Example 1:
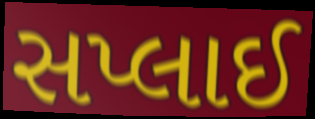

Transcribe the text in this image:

સપ્લાઈ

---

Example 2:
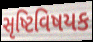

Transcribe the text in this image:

સૃષ્ટિવિષયક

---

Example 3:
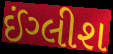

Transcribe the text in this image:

ઈંગ્લીશ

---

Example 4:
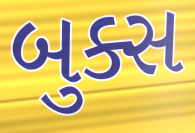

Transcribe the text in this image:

બુક્સ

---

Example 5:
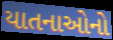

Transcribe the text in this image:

યાતનાઓનો